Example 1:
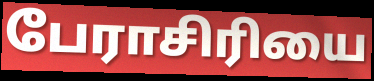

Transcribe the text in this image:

பேராசிரியை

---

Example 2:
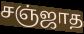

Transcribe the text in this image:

சஞ்ஜாத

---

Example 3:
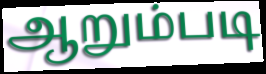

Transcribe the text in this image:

ஆறும்படி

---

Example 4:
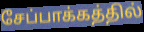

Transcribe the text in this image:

சேப்பாக்கத்தில்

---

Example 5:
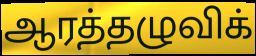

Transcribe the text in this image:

ஆரத்தழுவிக்